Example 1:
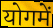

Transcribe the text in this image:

योगमें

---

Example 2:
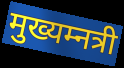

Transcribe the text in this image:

मुख्यम्नत्री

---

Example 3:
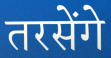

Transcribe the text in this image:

तरसेंगे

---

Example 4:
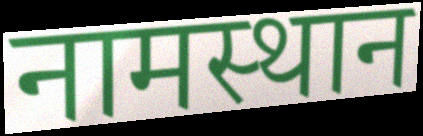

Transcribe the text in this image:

नामस्थान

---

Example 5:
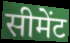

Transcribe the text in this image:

सीमेंट